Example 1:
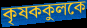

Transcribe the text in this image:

কৃষককুলকে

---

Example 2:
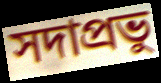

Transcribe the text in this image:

সদাপ্রভু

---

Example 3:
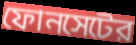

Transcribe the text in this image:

ফোনসেটের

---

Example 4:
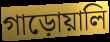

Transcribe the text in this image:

গাড়োয়ালি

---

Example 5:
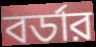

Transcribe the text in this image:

বর্ডার